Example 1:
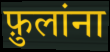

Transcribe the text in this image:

फ़ुलांना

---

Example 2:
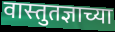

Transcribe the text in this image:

वास्तुतज्ञाच्या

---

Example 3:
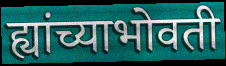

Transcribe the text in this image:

ह्यांच्याभोवती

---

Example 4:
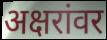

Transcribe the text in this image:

अक्षरांवर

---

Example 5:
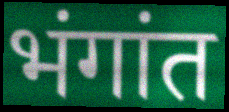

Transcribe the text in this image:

भंगांत